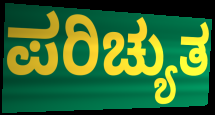
ಪರಿಚ್ಯುತ